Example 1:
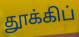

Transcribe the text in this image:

தூக்கிப்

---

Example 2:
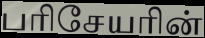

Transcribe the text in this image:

பரிசேயரின்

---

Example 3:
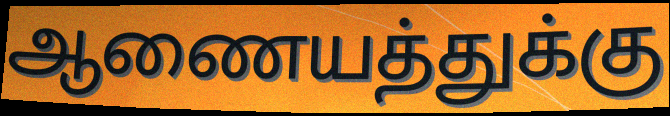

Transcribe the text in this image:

ஆணையத்துக்கு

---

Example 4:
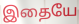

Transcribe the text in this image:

இதையே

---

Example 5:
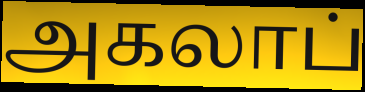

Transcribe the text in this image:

அகலாப்